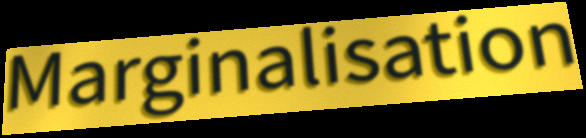
Marginalisation